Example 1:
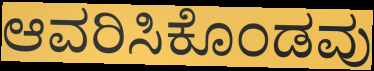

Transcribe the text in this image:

ಆವರಿಸಿಕೊಂಡವು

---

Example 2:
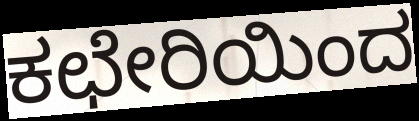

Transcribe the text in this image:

ಕಛೇರಿಯಿಂದ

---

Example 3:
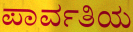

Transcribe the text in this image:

ಪಾರ್ವತಿಯ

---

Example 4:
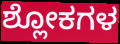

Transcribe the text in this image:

ಶ್ಲೋಕಗಳ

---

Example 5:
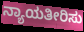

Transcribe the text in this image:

ನ್ಯಾಯತೀರಿಸು